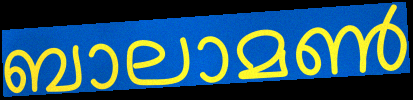
ബാലാമൺ